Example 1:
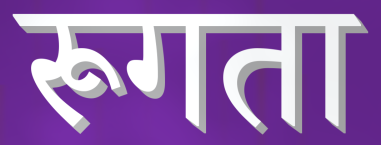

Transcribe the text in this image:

रूगता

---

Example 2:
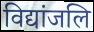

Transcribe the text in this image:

विद्यांजलि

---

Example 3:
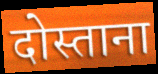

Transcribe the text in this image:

दोस्ताना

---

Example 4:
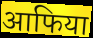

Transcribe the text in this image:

आफिया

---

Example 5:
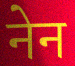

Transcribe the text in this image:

नेन